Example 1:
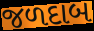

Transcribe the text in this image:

જળદાબ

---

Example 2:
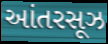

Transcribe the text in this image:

આંતરસૂઝ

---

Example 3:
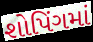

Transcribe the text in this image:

શોપિંગમાં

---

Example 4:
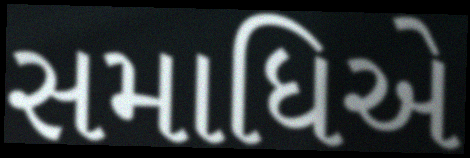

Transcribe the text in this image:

સમાધિએ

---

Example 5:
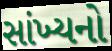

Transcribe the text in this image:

સાંખ્યનો